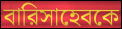
বারিসাহেবকে